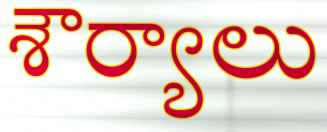
శౌర్యాలు